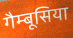
गैम्बूसिया